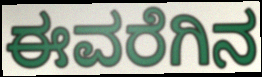
ಈವರೆಗಿನ